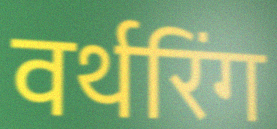
वर्थरिंग